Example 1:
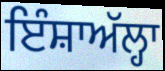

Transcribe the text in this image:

ਇੰਸ਼ਾਅੱਲ੍ਹਾ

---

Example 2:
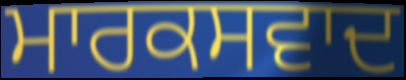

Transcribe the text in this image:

ਮਾਰਕਸਵਾਦ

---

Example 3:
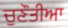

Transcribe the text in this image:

ਚੁਣੌਤੀਆ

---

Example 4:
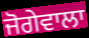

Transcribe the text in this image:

ਜੋਗੇਵਾਲਾ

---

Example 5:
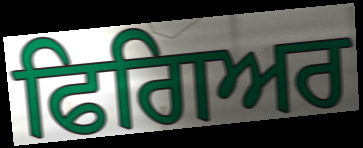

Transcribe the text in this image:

ਫਿਗਿਅਰ